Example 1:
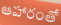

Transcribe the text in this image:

ఆహారంతో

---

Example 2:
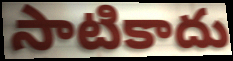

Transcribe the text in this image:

సాటికాదు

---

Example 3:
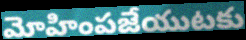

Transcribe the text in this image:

మోహింపజేయుటకు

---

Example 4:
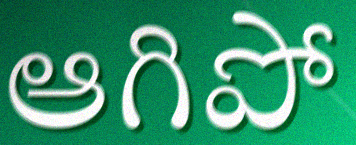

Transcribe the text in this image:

ఆగిపో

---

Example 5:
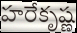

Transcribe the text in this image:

హరేకృష్ణ